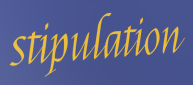
stipulation